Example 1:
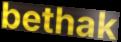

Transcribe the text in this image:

bethak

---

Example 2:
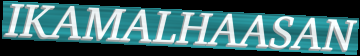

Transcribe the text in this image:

IKAMALHAASAN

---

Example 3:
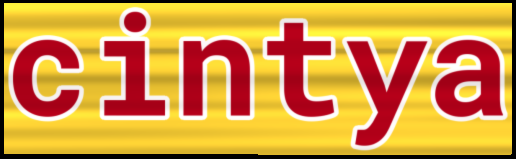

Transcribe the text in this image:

cintya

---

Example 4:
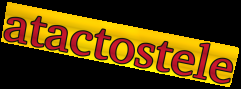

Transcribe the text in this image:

atactostele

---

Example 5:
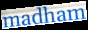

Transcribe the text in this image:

madham